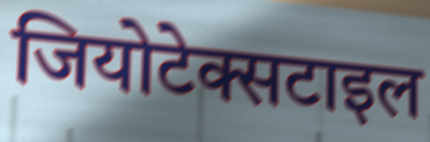
जियोटेक्सटाइल